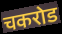
चकरोड